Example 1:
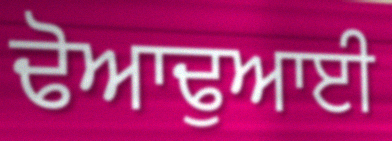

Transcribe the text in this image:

ਢੋਆਢੁਆਈ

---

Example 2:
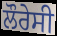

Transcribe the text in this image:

ਲੌਰੇਸੀ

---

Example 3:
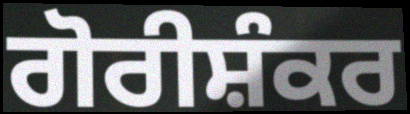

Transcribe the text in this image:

ਗੋਰੀਸ਼ੰਕਰ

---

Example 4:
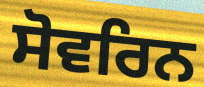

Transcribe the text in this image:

ਸੋਵਰਿਨ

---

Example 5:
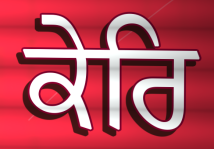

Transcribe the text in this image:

ਕੇਰਿ